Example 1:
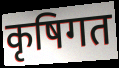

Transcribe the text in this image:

कृषिगत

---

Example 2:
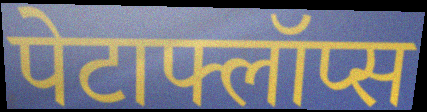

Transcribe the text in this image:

पेटाफ्लॉप्स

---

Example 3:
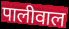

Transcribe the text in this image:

पालीवाल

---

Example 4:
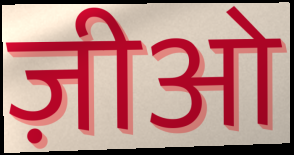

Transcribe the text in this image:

ज़ीओ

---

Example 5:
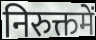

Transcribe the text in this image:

निरुक्तमें